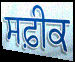
ਸਫ਼ੀਕ